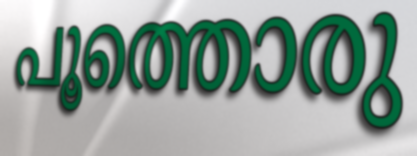
പൂത്തൊരു